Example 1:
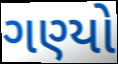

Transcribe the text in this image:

ગણ્યો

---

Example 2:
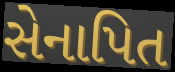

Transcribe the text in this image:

સેનાપિત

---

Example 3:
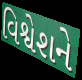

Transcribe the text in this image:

વિશ્વેશને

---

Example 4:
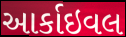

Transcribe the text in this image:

આર્કાઇવલ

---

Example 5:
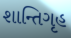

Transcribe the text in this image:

શાન્તિગૃહ